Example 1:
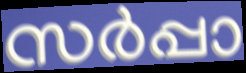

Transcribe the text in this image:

സർപ്പാ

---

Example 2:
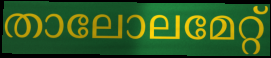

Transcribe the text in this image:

താലോലമേറ്റ്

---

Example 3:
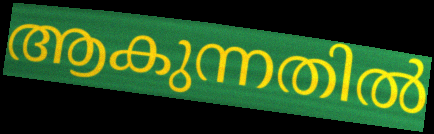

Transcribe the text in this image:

ആകുന്നതിൽ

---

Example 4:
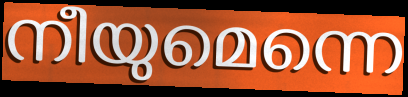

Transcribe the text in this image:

നീയുമെന്നെ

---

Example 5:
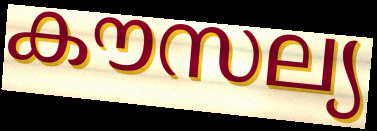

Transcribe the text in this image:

കൗസല്യ